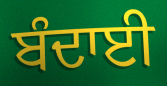
ਬੰਦਾਈ